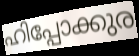
ഹിപ്പോക്കുര